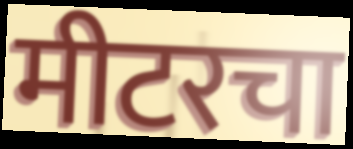
मीटरचा